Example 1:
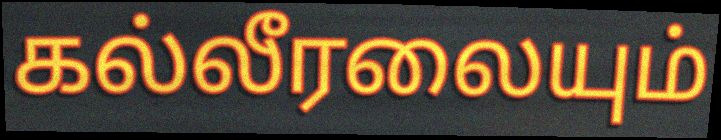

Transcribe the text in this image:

கல்லீரலையும்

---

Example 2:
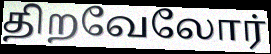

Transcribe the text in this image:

திறவேலோர்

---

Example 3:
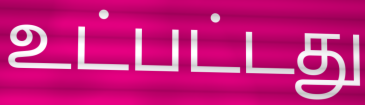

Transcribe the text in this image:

உட்பட்டது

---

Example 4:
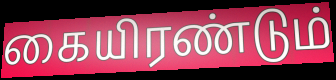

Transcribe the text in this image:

கையிரண்டும்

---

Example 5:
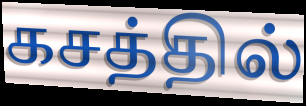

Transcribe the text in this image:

கசத்தில்